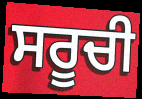
ਸਰੂਚੀ